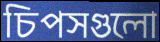
চিপসগুলো